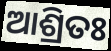
ଆଶ୍ରିତଃ